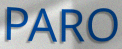
PARO